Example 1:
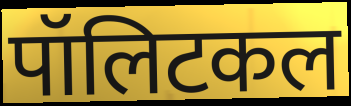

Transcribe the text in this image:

पॉलिटकल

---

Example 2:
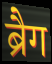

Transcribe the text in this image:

ब्रैग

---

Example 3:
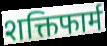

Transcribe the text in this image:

शक्तिफार्म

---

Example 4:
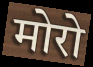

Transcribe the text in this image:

मोरो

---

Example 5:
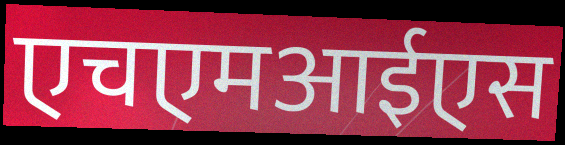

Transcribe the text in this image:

एचएमआईएस